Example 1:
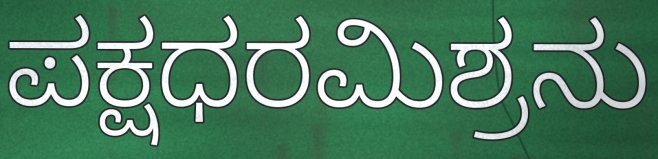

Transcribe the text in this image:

ಪಕ್ಷಧರಮಿಶ್ರನು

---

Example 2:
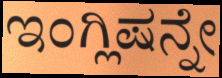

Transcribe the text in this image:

ಇಂಗ್ಲಿಷನ್ನೇ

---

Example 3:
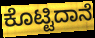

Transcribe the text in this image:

ಕೊಟ್ಟಿದಾನೆ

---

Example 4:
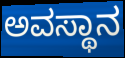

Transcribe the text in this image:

ಅವಸ್ಥಾನ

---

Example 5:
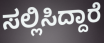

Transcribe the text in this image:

ಸಲ್ಲಿಸಿದ್ದಾರೆ